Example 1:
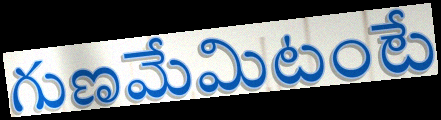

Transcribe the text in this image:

గుణమేమిటంటే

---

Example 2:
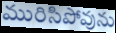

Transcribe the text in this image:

మురిసిపోవును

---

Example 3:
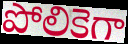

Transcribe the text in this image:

పోలికెగా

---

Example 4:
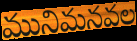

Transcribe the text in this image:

మునిమనవల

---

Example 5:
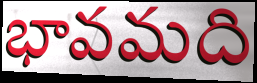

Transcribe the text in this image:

భావమది